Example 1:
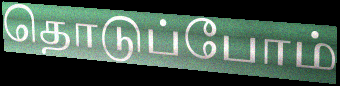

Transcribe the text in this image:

தொடுப்போம்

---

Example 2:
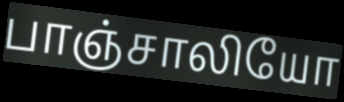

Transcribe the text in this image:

பாஞ்சாலியோ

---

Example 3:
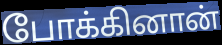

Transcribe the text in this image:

போக்கினான்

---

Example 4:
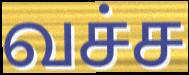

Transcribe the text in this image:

வச்ச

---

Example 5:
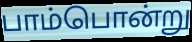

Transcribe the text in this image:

பாம்பொன்று